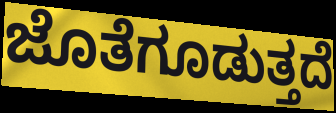
ಜೊತೆಗೂಡುತ್ತದೆ